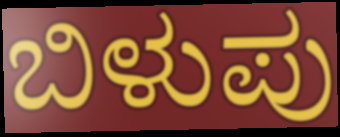
ಬಿಳುಪು